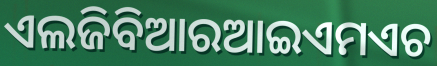
ଏଲଜିବିଆରଆଇଏମଏଚ